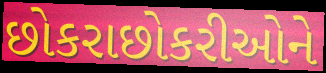
છોકરાછોકરીઓને